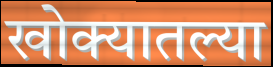
खोक्यातल्या